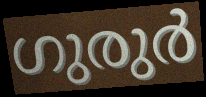
ഗുരുർ